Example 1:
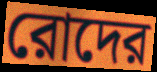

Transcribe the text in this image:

রোদের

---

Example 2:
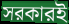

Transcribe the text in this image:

সরকারই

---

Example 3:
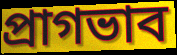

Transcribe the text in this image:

প্রাগভাব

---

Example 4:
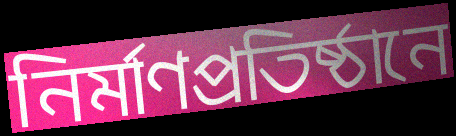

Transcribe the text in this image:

নির্মাণপ্রতিষ্ঠানে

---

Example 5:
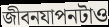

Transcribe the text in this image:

জীবনযাপনটাও